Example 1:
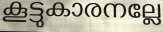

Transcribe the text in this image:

കൂട്ടുകാരനല്ലേ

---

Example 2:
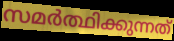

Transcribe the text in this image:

സമർത്ഥിക്കുന്നത്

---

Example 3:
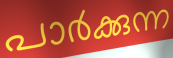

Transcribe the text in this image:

പാർക്കുന്ന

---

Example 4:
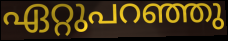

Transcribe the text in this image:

ഏറ്റുപറഞ്ഞു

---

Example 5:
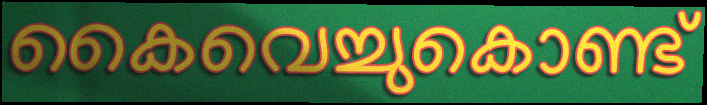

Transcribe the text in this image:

കൈവെച്ചുകൊണ്ട്